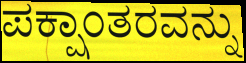
ಪಕ್ಷಾಂತರವನ್ನು